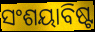
ସଂଶୟାବିଷ୍ଟ